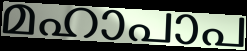
മഹാപാപ